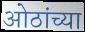
ओठांच्या